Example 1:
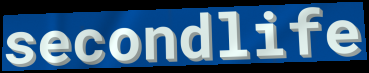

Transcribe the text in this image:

secondlife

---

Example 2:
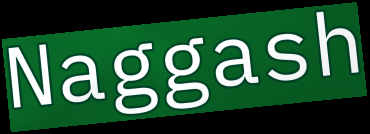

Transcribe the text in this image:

Naggash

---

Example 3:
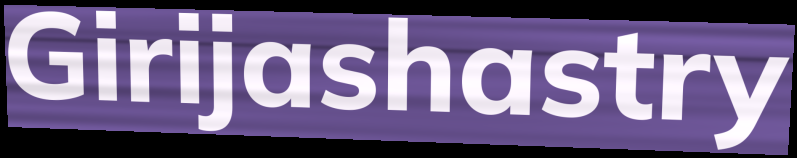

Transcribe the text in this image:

Girijashastry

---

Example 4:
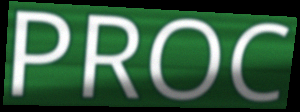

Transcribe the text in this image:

PROC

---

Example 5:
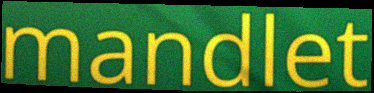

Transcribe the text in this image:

mandlet